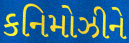
કનિમોઝીને